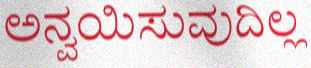
ಅನ್ವಯಿಸುವುದಿಲ್ಲ